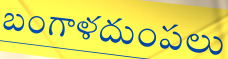
బంగాళదుంపలు